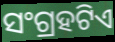
ସଂଗ୍ରହଟିଏ